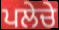
ਪਲੇਚੇ